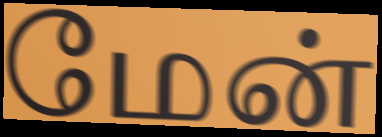
மேன்